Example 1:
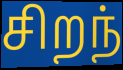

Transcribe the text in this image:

சிறந்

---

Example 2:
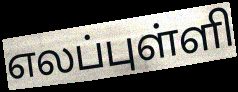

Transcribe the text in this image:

எலப்புள்ளி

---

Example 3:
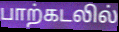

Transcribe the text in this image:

பாற்கடலில்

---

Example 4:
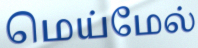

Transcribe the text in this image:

மெய்மேல்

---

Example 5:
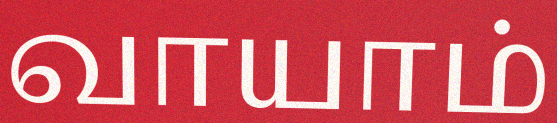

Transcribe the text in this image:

வாயாம்